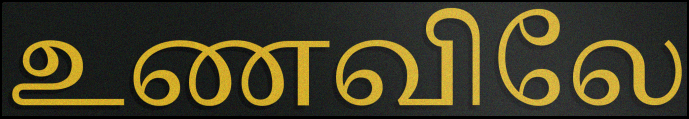
உணவிலே